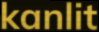
kanlit